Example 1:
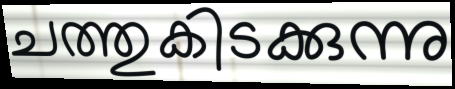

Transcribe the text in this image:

ചത്തുകിടക്കുന്നു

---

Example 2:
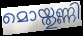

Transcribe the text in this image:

മൊയ്തുണ്ണി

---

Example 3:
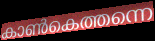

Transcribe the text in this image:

കാൺകെത്തന്നെ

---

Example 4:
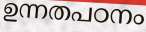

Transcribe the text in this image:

ഉന്നതപഠനം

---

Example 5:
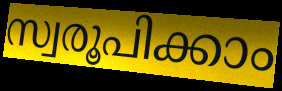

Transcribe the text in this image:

സ്വരൂപിക്കാം